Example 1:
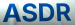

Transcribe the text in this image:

ASDR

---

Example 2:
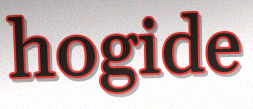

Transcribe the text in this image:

hogide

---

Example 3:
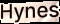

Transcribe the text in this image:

Hynes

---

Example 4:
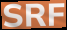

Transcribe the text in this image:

SRF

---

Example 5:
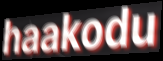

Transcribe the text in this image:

haakodu